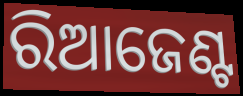
ରିଆଜେଣ୍ଟ